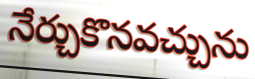
నేర్చుకొనవచ్చును